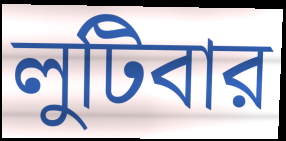
লুটিবার